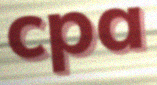
cpa